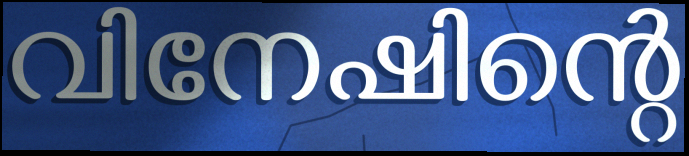
വിനേഷിന്റെ